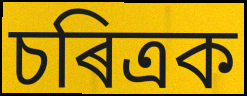
চৰিত্ৰক